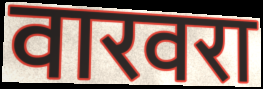
वारवरा